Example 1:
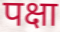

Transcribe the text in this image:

पक्षा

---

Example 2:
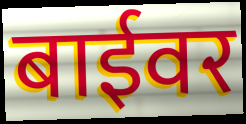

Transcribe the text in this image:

बाईवर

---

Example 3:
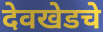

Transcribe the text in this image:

देवखेडचे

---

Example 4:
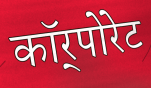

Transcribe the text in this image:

कॉर्पोरेट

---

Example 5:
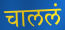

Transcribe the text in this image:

चाललं